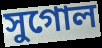
সুগোল